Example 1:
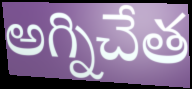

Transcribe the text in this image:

అగ్నిచేత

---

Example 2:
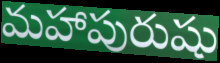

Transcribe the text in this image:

మహాపురుషు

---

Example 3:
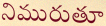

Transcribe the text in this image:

నిమురుతూ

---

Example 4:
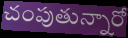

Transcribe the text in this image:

చంపుతున్నారో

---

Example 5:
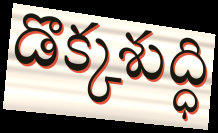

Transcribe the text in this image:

డొక్కశుద్ధి